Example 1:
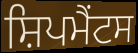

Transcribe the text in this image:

ਸ਼ਿਪਮੈਂਟਸ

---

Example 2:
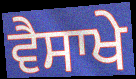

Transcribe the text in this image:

ਵੈਸਾਖੇ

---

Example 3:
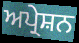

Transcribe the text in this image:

ਅਪ੍ਰੇਸ਼ਨ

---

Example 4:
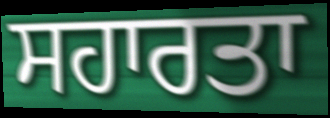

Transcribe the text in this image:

ਸਹਾਰਤਾ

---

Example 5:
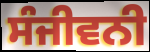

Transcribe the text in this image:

ਸੰਜੀਵਨੀ